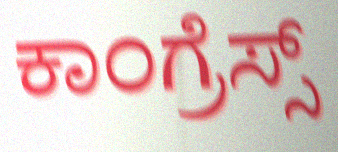
ಕಾಂಗ್ರೆಸ್ಸ್